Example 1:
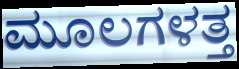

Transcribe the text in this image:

ಮೂಲಗಳತ್ತ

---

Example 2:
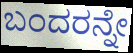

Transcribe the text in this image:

ಬಂದರನ್ನೇ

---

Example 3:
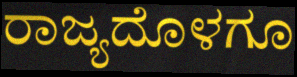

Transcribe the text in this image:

ರಾಜ್ಯದೊಳಗೂ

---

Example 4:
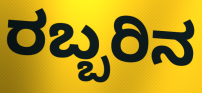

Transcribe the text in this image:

ರಬ್ಬರಿನ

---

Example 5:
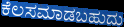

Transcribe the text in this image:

ಕೆಲಸಮಾಡಬಹುದು